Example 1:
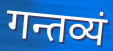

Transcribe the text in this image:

गन्तव्यं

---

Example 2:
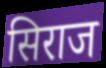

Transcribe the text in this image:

सिराज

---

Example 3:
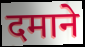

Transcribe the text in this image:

दमाने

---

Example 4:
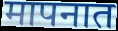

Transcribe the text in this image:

मापनात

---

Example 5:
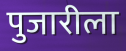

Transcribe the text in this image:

पुजारीला